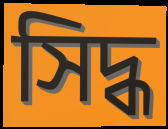
সিদ্ধ